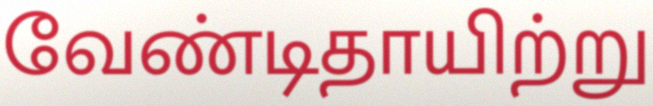
வேண்டிதாயிற்று